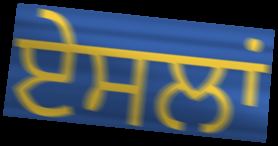
ਏਸਲਾਂ